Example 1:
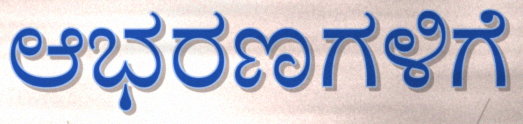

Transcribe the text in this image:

ಆಭರಣಗಳಿಗೆ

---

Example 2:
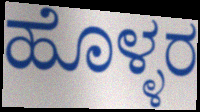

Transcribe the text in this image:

ಹೊಳ್ಳರ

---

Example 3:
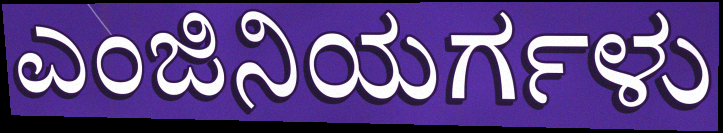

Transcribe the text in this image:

ಎಂಜಿನಿಯರ್ಗಳು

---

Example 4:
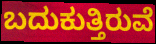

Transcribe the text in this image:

ಬದುಕುತ್ತಿರುವೆ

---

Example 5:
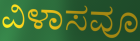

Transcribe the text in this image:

ವಿಳಾಸವೂ